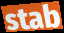
stab